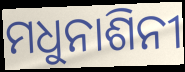
ମଧୁନାଶିନୀ